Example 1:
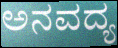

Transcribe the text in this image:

ಅನವದ್ಯ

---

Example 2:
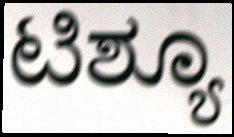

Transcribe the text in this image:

ಟಿಶ್ಯೂ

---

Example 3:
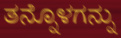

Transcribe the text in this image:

ತನ್ನೊಳಗನ್ನು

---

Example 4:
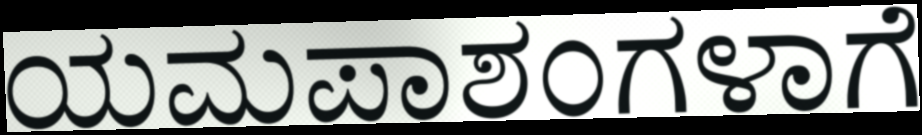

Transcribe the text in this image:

ಯಮಪಾಶಂಗಳಾಗೆ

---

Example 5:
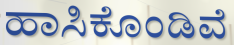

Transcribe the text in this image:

ಹಾಸಿಕೊಂಡಿವೆ